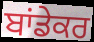
ਬਾਂਡੇਕਰ